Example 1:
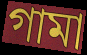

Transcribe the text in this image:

গামা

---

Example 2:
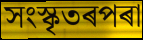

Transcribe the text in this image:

সংস্কৃতৰপৰা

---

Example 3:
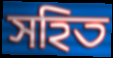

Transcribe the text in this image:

সহিত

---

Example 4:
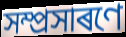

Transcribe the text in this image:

সম্প্ৰসাৰণে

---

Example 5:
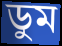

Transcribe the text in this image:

ডুম